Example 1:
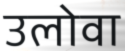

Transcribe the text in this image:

उलोवा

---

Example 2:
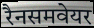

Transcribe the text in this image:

रैनसमवेयर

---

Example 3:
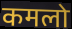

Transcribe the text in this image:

कमलो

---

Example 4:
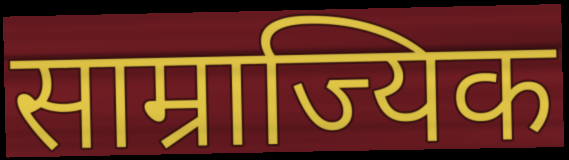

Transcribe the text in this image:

साम्राज्यिक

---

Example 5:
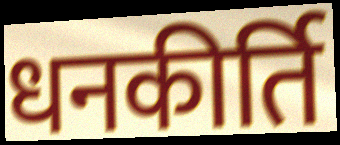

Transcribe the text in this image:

धनकीर्ति